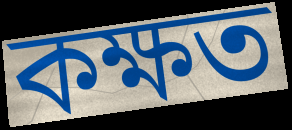
কক্ষত